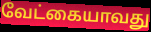
வேட்கையாவது